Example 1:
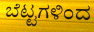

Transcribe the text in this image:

ಬೆಟ್ಟಗಳಿಂದ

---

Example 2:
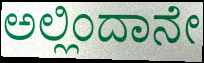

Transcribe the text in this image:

ಅಲ್ಲಿಂದಾನೇ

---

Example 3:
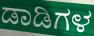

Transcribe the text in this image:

ಡಾಡಿಗಳ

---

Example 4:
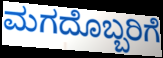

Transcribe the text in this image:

ಮಗದೊಬ್ಬರಿಗೆ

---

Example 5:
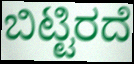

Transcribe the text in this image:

ಬಿಟ್ಟಿರದೆ